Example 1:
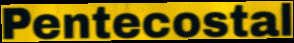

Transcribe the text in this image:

Pentecostal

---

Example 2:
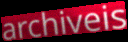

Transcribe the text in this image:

archiveis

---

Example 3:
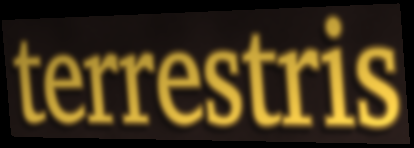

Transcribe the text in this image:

terrestris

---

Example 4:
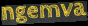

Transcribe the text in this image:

ngemva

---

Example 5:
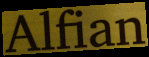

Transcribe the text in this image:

Alfian